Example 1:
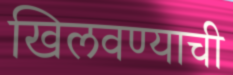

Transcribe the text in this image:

खिलवण्याची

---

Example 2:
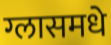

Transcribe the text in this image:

ग्लासमधे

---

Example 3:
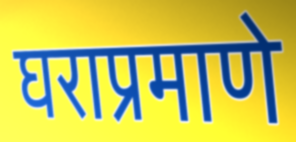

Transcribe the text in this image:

घराप्रमाणे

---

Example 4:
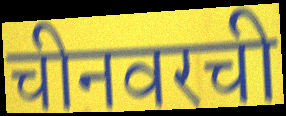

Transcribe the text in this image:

चीनवरची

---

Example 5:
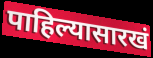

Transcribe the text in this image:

पाहिल्यासारखं